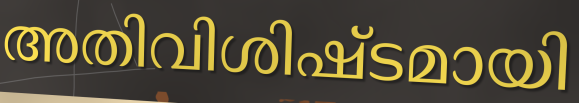
അതിവിശിഷ്ടമായി